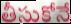
తీసుకోనే